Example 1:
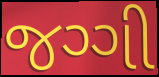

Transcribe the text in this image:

જગ્ગી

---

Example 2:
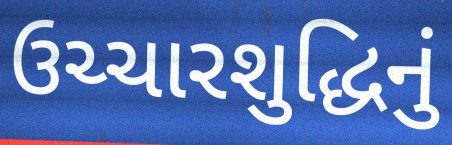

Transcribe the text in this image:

ઉચ્ચારશુદ્ધિનું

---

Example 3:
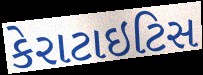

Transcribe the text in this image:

કેરાટાઇટિસ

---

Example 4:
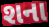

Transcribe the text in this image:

શના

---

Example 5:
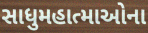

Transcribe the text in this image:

સાધુમહાત્માઓના